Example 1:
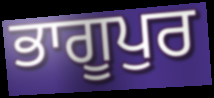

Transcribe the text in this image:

ਭਾਗੂਪੁਰ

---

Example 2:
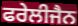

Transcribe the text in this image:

ਫਰੇਲੀਜੈਨ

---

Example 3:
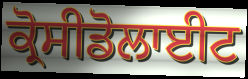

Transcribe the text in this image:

ਕ੍ਰੋਸੀਡੋਲਾਈਟ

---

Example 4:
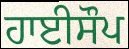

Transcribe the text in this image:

ਹਾਈਸੌਪ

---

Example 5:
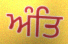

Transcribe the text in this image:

ਅੰਤਿ